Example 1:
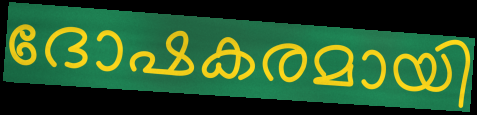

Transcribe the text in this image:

ദോഷകരമായി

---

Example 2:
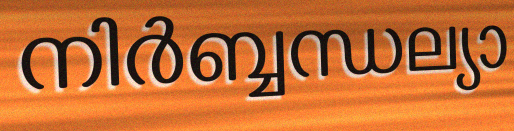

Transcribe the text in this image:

നിർബ്ബന്ധല്യാ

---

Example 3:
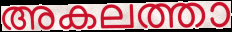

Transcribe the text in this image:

അകലത്താ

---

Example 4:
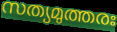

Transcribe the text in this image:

സത്യമുത്തരഃ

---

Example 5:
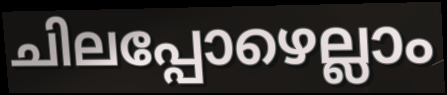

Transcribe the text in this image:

ചിലപ്പോഴെല്ലാം